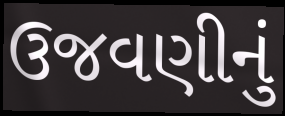
ઉજવણીનું